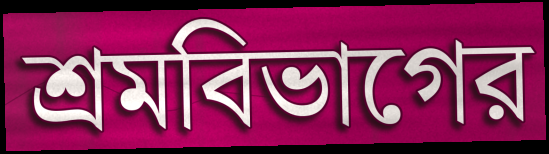
শ্রমবিভাগের